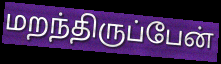
மறந்திருப்பேன்